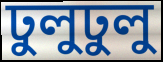
ঢুলুঢুলু